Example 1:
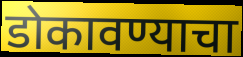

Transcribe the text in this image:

डोकावण्याचा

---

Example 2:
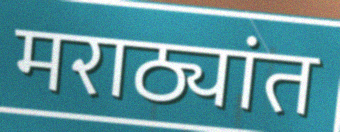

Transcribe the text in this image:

मराठ्यांत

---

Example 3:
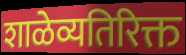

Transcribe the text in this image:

शाळेव्यतिरिक्त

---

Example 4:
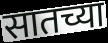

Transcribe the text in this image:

सातच्या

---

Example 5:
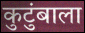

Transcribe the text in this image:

कुटुंबाला